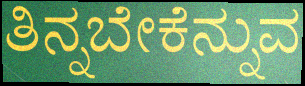
ತಿನ್ನಬೇಕೆನ್ನುವ